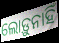
ଲୋଡ଼ୁନାହିଁ